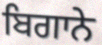
ਬਿਗਾਨੇ